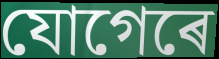
যোগেৰে